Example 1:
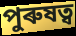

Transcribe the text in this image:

পুৰুষত্ব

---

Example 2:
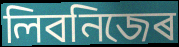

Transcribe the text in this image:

লিবনিজেৰ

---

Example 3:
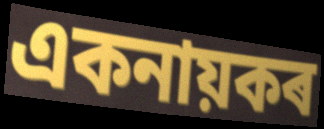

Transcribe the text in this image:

একনায়কৰ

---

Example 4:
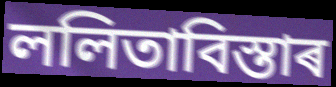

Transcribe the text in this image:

ললিতাবিস্তাৰ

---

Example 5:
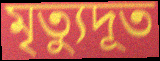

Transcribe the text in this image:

মৃত্যুদূত